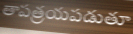
తాపత్రయపడుతూ